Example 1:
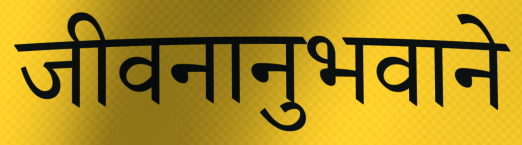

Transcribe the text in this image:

जीवनानुभवाने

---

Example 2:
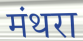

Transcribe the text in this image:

मंथरा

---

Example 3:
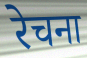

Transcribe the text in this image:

रेचना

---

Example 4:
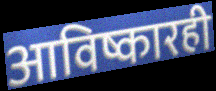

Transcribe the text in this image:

आविष्कारही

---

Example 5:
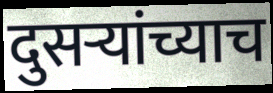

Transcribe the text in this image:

दुसऱ्यांच्याच